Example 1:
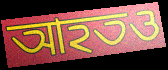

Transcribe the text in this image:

আহতও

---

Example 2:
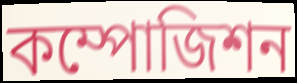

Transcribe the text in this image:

কম্পোজিশন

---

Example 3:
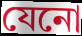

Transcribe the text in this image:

যেনো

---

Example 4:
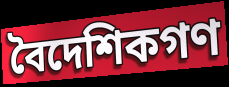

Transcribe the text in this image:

বৈদেশিকগণ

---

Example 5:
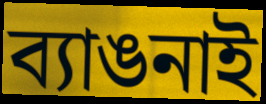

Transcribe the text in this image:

ব্যাঙনাই